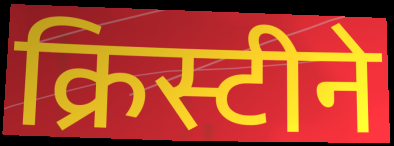
क्रिस्टीने